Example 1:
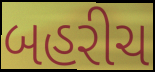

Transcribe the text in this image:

બહરીચ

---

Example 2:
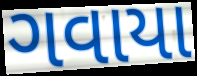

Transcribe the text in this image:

ગવાયા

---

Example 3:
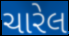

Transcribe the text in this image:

ચારેલ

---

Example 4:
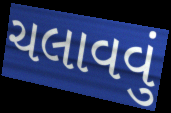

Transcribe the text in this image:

ચલાવવું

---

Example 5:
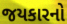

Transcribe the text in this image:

જયકારનો